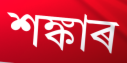
শঙ্কাৰ